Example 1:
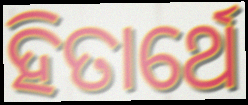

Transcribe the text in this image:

ହିତାର୍ଥେ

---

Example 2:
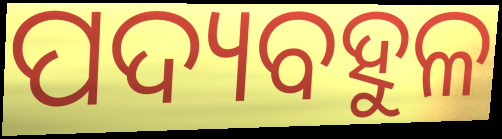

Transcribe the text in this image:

ପଦ୍ୟବହୁଳ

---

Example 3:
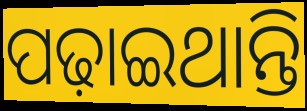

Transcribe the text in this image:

ପଢ଼ାଇଥାନ୍ତି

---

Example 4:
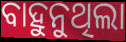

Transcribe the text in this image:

ବାହୁନୁଥିଲା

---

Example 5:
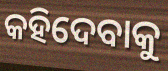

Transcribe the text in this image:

କହିଦେବାକୁ